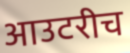
आउटरीच